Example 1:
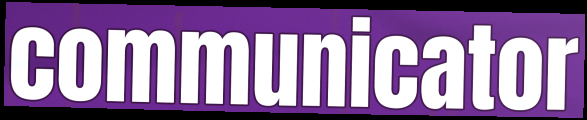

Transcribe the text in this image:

communicator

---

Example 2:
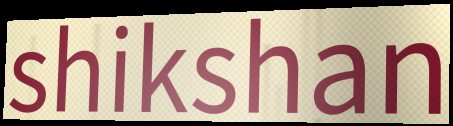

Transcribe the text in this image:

shikshan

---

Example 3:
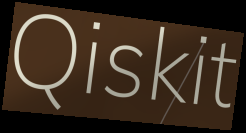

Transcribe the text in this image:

Qiskit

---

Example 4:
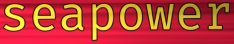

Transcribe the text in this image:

seapower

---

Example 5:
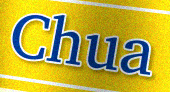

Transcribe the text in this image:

Chua